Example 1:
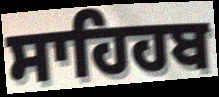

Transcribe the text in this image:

ਸਾਹਿਹਬ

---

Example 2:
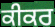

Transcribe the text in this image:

ਕੀਕਰ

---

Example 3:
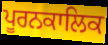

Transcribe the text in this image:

ਪੂਰਨਕਾਲਿਕ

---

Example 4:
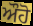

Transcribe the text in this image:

ਔਹੋ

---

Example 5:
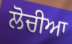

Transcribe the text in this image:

ਲੋਚੀਆ